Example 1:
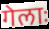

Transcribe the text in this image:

गेलाः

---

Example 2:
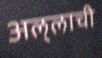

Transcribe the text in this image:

अल्लाची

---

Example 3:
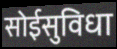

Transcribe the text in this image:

सोईसुविधा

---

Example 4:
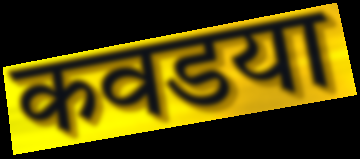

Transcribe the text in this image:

कवडया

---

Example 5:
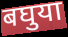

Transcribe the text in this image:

बघुया